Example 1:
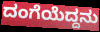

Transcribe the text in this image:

ದಂಗೆಯೆದ್ದನು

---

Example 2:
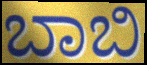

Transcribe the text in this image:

ಬಾಬಿ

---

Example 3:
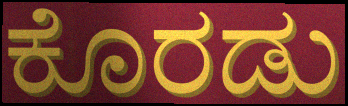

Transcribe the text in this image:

ಕೊರಡು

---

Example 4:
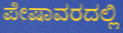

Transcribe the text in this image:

ಪೇಷಾವರದಲ್ಲಿ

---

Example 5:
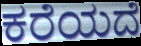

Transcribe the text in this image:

ಕರೆಯದೆ